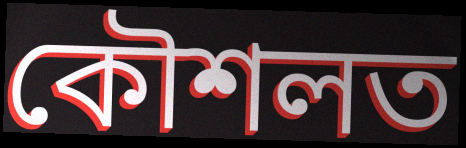
কৌশলত